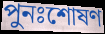
পুনঃশোষণ